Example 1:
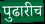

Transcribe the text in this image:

पुढारीच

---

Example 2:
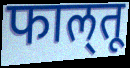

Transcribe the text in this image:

फाल्तू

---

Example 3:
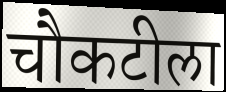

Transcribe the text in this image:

चौकटीला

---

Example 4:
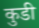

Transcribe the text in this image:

कुडी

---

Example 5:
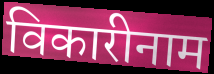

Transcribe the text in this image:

विकारीनाम